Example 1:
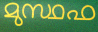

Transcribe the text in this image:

മുസ്ഥഫ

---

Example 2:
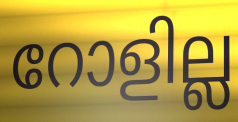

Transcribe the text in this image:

റോളില്ല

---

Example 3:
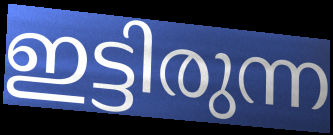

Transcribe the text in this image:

ഇട്ടിരുന്ന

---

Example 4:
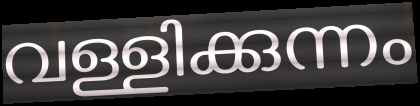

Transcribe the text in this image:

വള്ളിക്കുന്നം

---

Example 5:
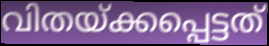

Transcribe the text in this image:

വിതയ്ക്കപ്പെട്ടത്